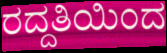
ರದ್ದತಿಯಿಂದ